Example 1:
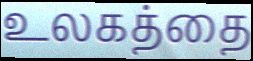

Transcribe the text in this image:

உலகத்தை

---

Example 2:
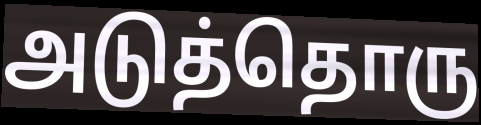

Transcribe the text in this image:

அடுத்தொரு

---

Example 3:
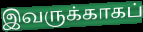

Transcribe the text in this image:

இவருக்காகப்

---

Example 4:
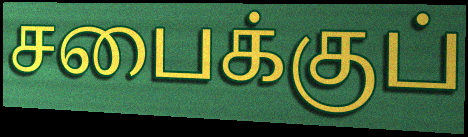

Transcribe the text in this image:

சபைக்குப்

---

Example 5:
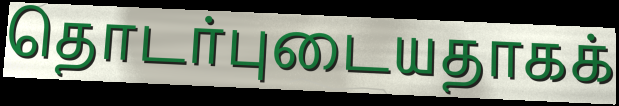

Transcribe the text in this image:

தொடர்புடையதாகக்